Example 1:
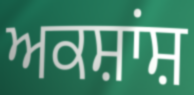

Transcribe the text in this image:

ਅਕਸ਼ਾਂਸ਼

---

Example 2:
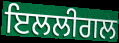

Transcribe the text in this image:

ਇਲਲੀਗਲ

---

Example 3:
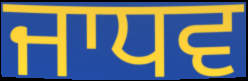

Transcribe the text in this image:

ਜਾਧਵ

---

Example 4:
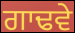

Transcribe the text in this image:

ਗਾਢਵੇ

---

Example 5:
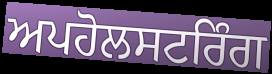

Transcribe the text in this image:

ਅਪਹੋਲਸਟਰਿੰਗ